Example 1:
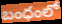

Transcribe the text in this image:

బంధంలో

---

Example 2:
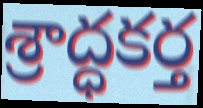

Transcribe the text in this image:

శ్రాద్ధకర్త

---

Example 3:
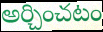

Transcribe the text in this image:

అర్చించటం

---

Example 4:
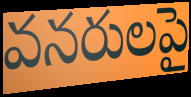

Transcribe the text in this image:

వనరులపై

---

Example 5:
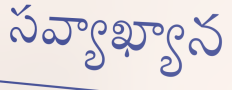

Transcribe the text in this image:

సవ్యాఖ్యాన